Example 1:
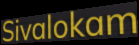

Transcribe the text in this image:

Sivalokam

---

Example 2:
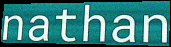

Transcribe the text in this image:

nathan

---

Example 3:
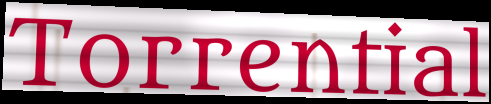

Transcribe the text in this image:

Torrential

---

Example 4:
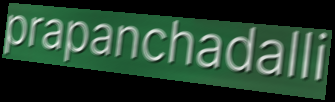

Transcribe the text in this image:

prapanchadalli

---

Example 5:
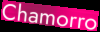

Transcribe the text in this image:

Chamorro